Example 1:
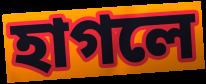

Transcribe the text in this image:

হাগলে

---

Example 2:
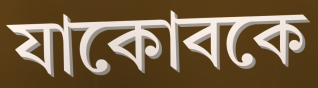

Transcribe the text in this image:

যাকোবকে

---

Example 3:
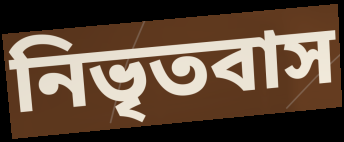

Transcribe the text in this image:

নিভৃতবাস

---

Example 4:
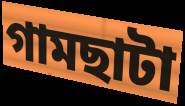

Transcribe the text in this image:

গামছাটা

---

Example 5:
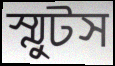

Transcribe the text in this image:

স্মুটস